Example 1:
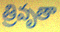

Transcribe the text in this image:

త్రివృతా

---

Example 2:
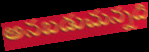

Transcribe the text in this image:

అనబడుచున్నది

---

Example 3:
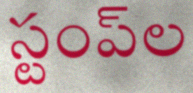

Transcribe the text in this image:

స్టంప్‌ల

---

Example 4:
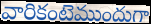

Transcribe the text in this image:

వారికంటెముందుగా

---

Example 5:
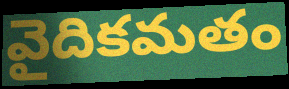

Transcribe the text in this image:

వైదికమతం